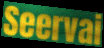
Seervai